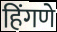
हिंगणे